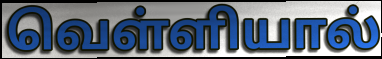
வெள்ளியால்